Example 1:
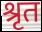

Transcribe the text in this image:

श्रृत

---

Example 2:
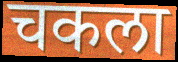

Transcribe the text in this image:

चकला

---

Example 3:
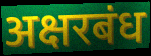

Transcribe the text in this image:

अक्षरबंध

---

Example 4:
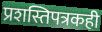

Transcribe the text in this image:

प्रशस्तिपत्रकही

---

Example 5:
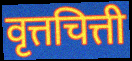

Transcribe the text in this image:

वृत्तचित्ती